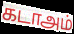
கடாஅம்